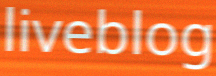
liveblog